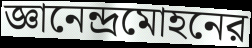
জ্ঞানেন্দ্রমোহনের